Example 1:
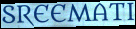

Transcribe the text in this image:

SREEMATI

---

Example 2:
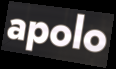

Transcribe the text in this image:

apolo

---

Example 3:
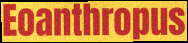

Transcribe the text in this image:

Eoanthropus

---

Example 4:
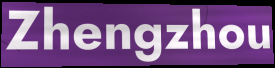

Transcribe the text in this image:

Zhengzhou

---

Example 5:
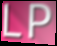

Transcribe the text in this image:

LP